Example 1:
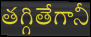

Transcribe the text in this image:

తగ్గితేగానీ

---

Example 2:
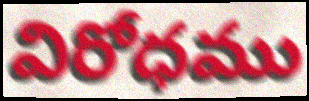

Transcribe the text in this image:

విరోధము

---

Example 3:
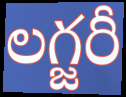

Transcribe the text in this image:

లగ్జరీ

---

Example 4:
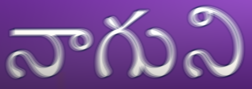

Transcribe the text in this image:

నాగుని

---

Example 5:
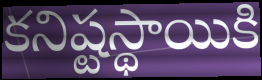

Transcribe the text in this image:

కనిష్టస్థాయికి